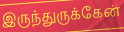
இருந்துருக்கேன்